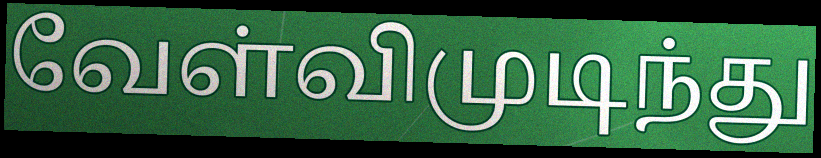
வேள்விமுடிந்து